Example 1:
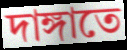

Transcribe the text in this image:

দাঙ্গাতে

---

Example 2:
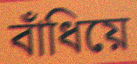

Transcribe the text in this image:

বাঁধিয়ে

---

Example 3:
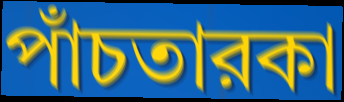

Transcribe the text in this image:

পাঁচতারকা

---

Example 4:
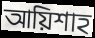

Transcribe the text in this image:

আয়িশাহ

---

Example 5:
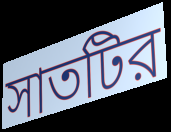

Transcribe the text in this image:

সাতটির